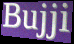
Bujji